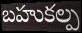
బహుకల్ప